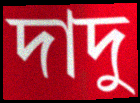
দাদু